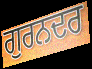
ਗੁਰਨਦਰ